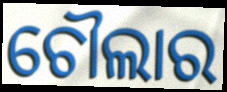
ଚୌଲାର